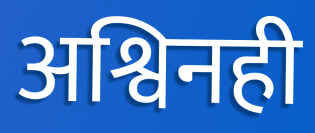
अश्विनही